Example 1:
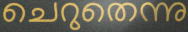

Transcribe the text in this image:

ചെറുതെന്നു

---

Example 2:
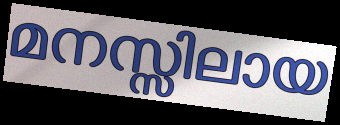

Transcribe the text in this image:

മനസ്സിലായ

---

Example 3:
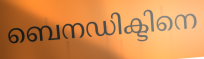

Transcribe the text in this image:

ബെനഡിക്ടിനെ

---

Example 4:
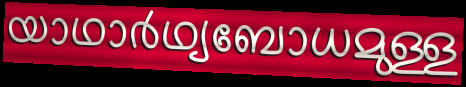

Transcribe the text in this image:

യാഥാർഥ്യബോധമുള്ള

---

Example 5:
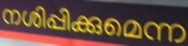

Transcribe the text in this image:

നശിപ്പിക്കുമെന്ന